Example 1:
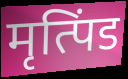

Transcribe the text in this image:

मृत्पिंड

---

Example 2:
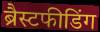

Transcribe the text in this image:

ब्रैस्टफीडिंग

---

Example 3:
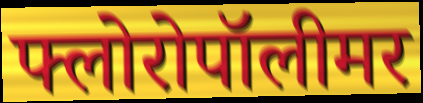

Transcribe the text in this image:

फ्लोरोपॉलीमर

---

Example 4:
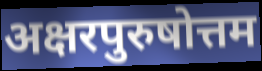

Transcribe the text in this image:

अक्षरपुरुषोत्तम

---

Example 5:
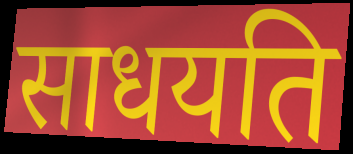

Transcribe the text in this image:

साधयति